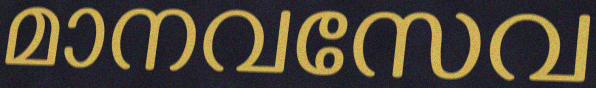
മാനവസേവ